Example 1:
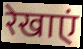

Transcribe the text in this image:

रेखाएं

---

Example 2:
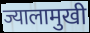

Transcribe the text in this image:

ज्यालामुखी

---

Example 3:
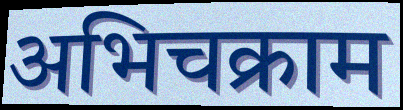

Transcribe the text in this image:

अभिचक्राम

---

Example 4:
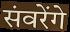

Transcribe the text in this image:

संवरेंगे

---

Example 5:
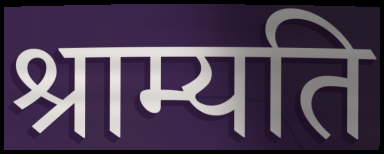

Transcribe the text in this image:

श्राम्यति